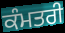
ਕੰਮਤਰੀ